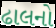
ઢાલનો